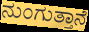
ನುಂಗುತ್ತಾನೆ